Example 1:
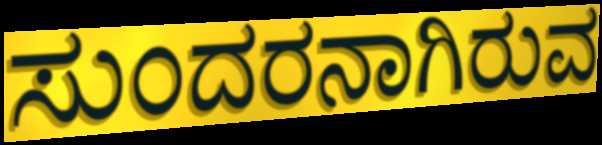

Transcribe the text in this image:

ಸುಂದರನಾಗಿರುವ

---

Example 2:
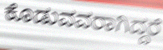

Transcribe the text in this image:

ಕೊಡುವವರಾಗಿದ್ದರೆ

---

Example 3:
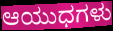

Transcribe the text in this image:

ಆಯುಧಗಳು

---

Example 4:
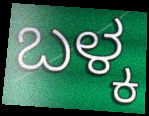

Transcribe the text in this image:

ಬಳ್ಕ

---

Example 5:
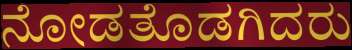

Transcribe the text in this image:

ನೋಡತೊಡಗಿದರು